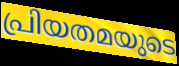
പ്രിയതമയുടെ